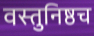
वस्तुनिष्ठच